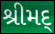
શ્રીમદ્